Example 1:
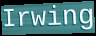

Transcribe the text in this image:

Irwing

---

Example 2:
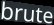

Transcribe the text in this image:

brute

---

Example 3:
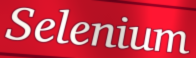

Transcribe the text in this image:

Selenium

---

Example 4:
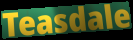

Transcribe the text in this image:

Teasdale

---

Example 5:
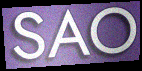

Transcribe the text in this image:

SAO